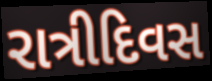
રાત્રીદિવસ